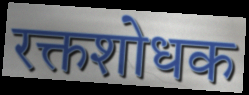
रक्तशोधक